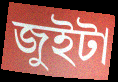
জুইটা